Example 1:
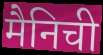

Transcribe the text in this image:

मैनिची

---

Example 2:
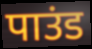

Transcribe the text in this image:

पाउंड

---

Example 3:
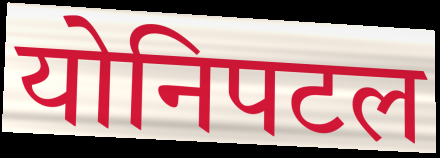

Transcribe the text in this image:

योनिपटल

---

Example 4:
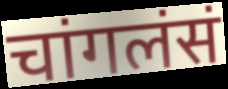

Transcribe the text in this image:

चांगलंसं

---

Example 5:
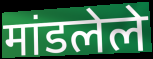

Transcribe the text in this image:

मांडलेले